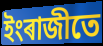
ইংৰাজীতে